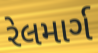
રેલમાર્ગ